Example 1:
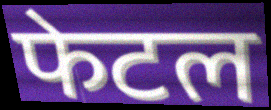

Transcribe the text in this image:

फेटल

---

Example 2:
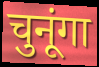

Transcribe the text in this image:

चुनूंगा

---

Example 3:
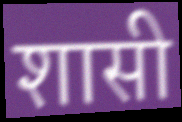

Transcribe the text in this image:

शासी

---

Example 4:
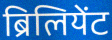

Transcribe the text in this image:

ब्रिलियेंट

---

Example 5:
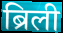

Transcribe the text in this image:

ब्रिली